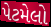
પેટમેલો